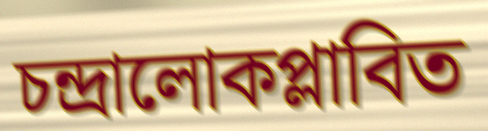
চন্দ্রালোকপ্লাবিত